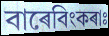
বাৰেবিংকৰাঃ